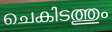
ചെകിടത്തും